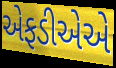
એફડીએએ